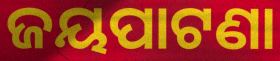
ଜୟପାଟଣା